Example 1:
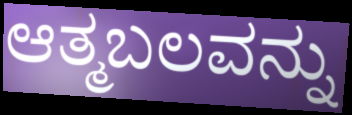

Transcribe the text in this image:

ಆತ್ಮಬಲವನ್ನು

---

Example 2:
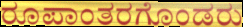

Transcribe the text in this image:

ರೂಪಾಂತರಗೊಂಡರು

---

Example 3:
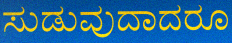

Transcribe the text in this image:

ಸುಡುವುದಾದರೂ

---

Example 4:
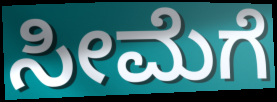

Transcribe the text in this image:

ಸೀಮೆಗೆ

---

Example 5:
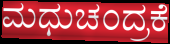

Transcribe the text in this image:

ಮಧುಚಂದ್ರಕೆ